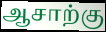
ஆசாற்கு